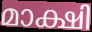
മാക്ഷി